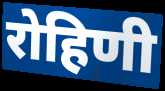
रोहिणी